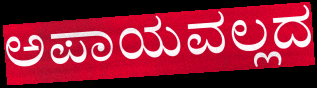
ಅಪಾಯವಲ್ಲದ